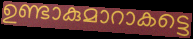
ഉണ്ടാകുമാറാകട്ടെ